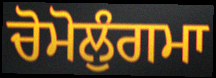
ਚੋਮੋਲੁੰਗਮਾ